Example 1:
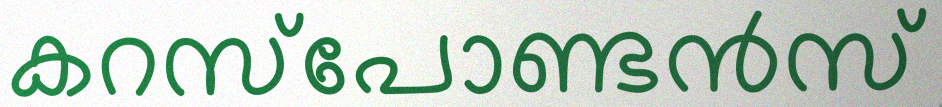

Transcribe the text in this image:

കറസ്പോണ്ടൻസ്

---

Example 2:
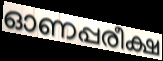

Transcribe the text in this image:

ഓണപ്പരീക്ഷ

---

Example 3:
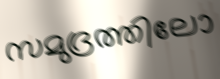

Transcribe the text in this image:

സമുദ്രത്തിലോ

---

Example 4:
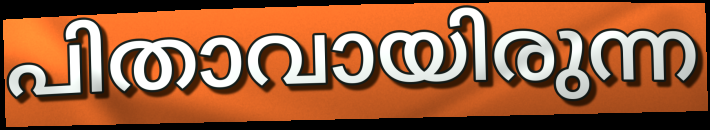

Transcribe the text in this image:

പിതാവായിരുന്ന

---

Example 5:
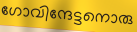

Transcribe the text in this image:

ഗോവിന്ദേട്ടനൊരു